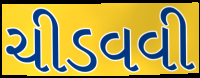
ચીડવવી